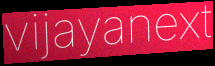
vijayanext